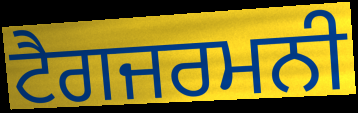
ਟੈਗਜਰਮਨੀ